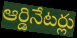
ఆర్డినేటర్లు